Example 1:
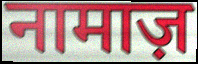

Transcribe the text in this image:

नामाज़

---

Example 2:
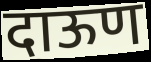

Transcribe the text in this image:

दाऊण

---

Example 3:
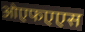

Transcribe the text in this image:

ओएफएएस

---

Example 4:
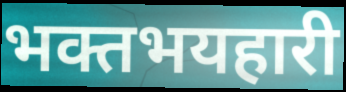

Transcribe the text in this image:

भक्तभयहारी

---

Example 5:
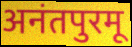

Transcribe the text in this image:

अनंतपुरमू